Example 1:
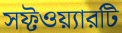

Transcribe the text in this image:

সফ্টওয়্যারটি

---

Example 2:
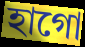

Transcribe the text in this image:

হাগো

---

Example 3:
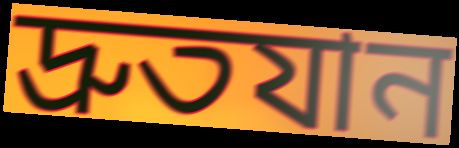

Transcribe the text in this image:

দ্রুতযান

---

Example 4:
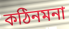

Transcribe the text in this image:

কঠিনমনা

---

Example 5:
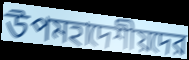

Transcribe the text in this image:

উপমহাদেশীয়দের